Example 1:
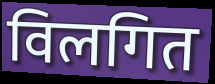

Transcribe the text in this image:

विलगित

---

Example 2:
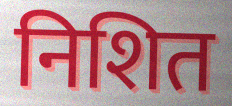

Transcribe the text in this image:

निशित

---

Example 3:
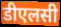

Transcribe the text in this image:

डीएलसी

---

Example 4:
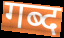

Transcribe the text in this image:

गब्द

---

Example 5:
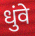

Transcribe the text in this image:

धुंवे